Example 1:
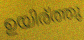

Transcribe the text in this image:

ഉയിര്ത്തു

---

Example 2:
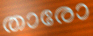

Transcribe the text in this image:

താരോ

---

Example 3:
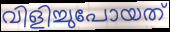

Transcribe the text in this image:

വിളിച്ചുപോയത്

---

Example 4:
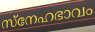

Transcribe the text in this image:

സ്നേഹഭാവം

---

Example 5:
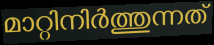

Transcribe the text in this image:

മാറ്റിനിർത്തുന്നത്